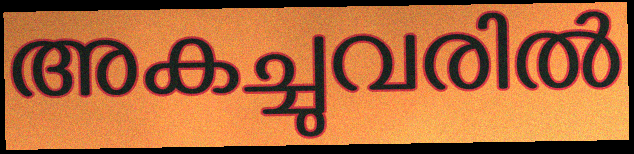
അകച്ചുവരിൽ